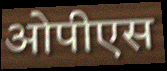
ओपीएस